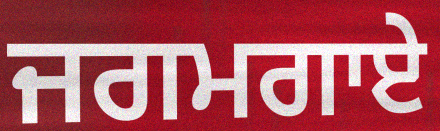
ਜਗਮਗਾਏ